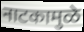
नाटकामुळे